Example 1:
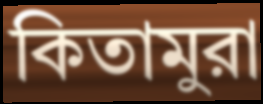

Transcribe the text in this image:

কিতামুরা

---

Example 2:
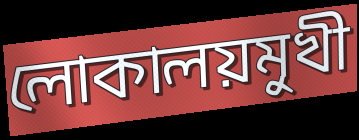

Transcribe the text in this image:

লোকালয়মুখী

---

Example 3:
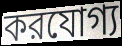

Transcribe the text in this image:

করযোগ্য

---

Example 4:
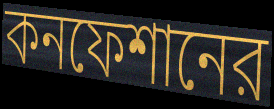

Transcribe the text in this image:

কনফেশানের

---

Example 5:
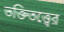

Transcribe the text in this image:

ভক্তিতত্ত্বের